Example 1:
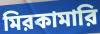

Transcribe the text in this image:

মিরকামারি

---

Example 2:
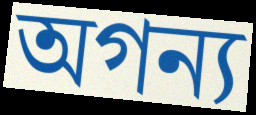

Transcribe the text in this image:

অগন্য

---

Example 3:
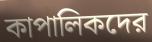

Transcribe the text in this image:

কাপালিকদের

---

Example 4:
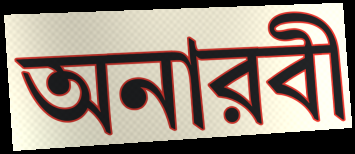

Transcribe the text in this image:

অনারবী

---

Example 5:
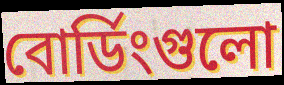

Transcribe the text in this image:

বোর্ডিংগুলো